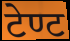
टेण्ट